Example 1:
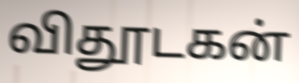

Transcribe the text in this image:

விதூடகன்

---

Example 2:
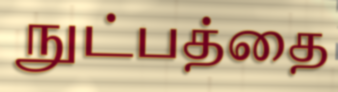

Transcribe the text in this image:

நுட்பத்தை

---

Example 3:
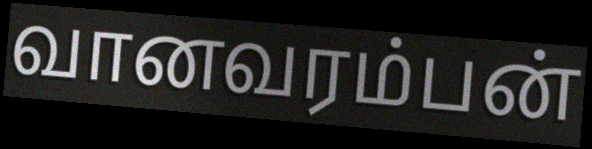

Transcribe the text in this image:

வானவரம்பன்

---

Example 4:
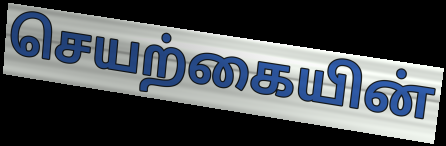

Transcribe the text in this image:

செயற்கையின்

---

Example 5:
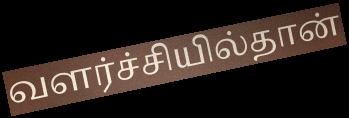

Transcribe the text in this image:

வளர்ச்சியில்தான்